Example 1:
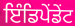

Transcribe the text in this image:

ਇੰਡਿਪੇਂਡੇਂਟ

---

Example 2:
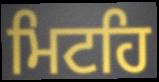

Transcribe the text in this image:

ਮਿਟਹਿ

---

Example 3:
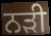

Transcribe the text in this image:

ਨੜੀ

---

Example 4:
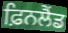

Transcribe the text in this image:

ਫ਼ਿਨਲੈਂਡ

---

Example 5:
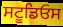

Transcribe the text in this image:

ਸਟੂਡਿਓਸ